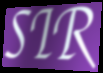
SIR